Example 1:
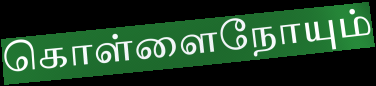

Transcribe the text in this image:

கொள்ளைநோயும்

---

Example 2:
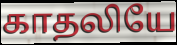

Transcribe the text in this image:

காதலியே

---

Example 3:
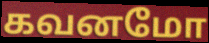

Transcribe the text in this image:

கவனமோ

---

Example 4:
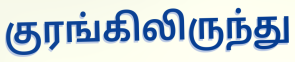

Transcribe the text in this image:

குரங்கிலிருந்து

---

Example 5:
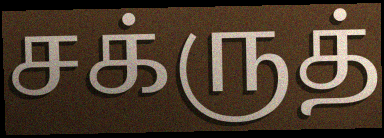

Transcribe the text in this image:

சக்ருத்